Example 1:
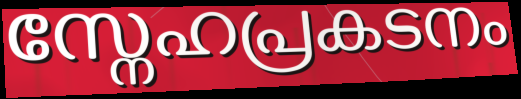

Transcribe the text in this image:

സ്നേഹപ്രകടനം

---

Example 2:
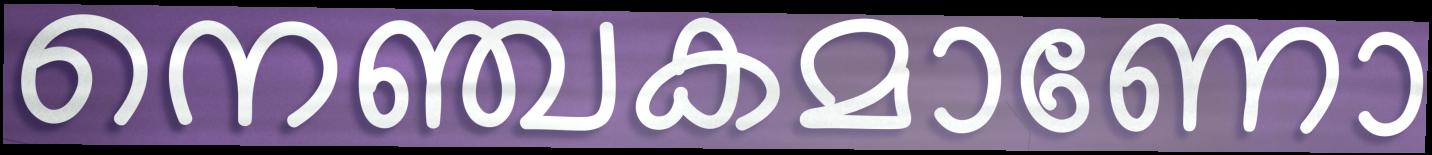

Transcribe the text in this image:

നെഞ്ചകമാണോ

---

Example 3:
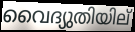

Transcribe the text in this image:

വൈദ്യുതിയില്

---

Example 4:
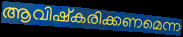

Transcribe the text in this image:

ആവിഷ്കരിക്കണമെന്ന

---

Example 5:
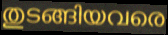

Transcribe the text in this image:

തുടങ്ങിയവരെ